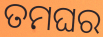
ତମଘର